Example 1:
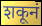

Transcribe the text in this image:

शकूनं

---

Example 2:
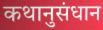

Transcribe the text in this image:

कथानुसंधान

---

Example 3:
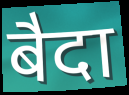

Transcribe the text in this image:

बैदा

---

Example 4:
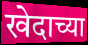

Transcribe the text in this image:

खेदाच्या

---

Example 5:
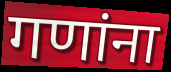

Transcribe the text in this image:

गणांना